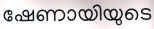
ഷേണായിയുടെ